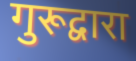
गुरूद्वारा